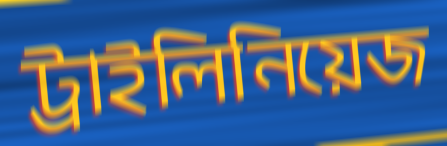
ট্রাইলিনিয়েজ